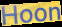
Hoon